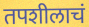
तपशीलाचं